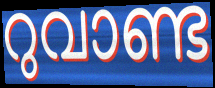
റുവാണ്ട